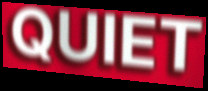
QUIET